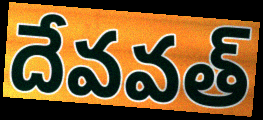
దేవవత్